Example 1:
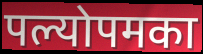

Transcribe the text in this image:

पल्योपमका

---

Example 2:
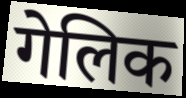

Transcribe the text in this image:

गेलिक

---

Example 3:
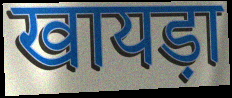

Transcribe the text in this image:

खायड़ा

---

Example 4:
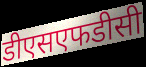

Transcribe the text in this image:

डीएसएफडीसी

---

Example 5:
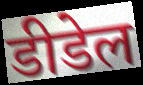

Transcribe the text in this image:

डीडेल